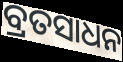
ବ୍ରତସାଧନ